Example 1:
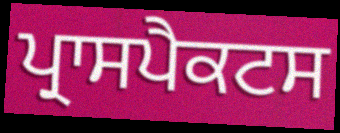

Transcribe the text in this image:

ਪ੍ਰਾਸਪੈਕਟਸ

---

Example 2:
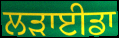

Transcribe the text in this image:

ਲੜਾਈਡਾ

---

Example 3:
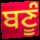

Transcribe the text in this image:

ਬਣੂੰ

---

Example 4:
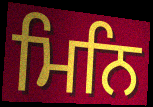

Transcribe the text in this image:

ਮਿਨਿ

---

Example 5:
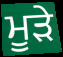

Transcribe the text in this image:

ਮੂੜੇ